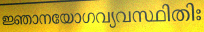
ജ്ഞാനയോഗവ്യവസ്ഥിതിഃ